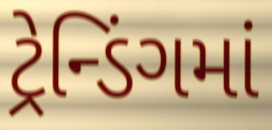
ટ્રેન્ડિંગમાં